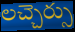
లచ్చెర్సు